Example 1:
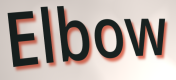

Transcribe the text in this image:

Elbow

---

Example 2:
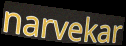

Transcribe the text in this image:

narvekar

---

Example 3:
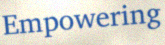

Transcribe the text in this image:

Empowering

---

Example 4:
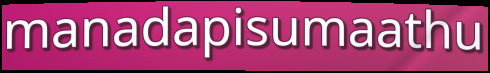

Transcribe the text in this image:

manadapisumaathu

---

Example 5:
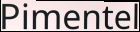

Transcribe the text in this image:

Pimentel